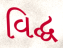
વિદ્ઘ